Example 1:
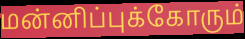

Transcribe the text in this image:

மன்னிப்புக்கோரும்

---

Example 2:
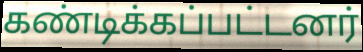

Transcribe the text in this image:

கண்டிக்கப்பட்டனர்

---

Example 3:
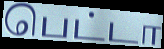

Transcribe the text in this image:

பெட்டா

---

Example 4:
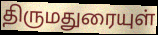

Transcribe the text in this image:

திருமதுரையுள்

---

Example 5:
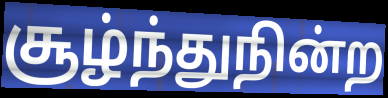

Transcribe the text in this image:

சூழ்ந்துநின்ற